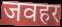
जवहर